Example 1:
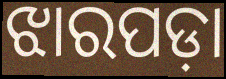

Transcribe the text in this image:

ଝାରପଡ଼ା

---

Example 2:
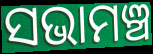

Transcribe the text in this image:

ସଭାମଞ୍ଚ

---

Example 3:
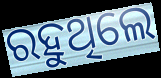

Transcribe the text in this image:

ରହୁଥିଲେ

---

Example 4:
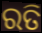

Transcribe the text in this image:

ରତି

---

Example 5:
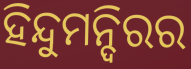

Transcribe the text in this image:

ହିନ୍ଦୁମନ୍ଦିରର